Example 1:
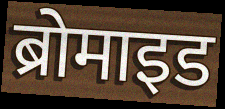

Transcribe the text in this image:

ब्रोमाइड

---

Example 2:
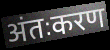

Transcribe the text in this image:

अंतःकरण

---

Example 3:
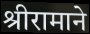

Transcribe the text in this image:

श्रीरामाने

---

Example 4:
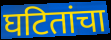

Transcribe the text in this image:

घटितांचा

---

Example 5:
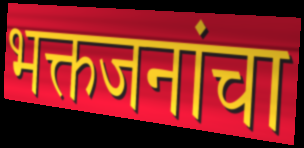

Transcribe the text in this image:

भक्तजनांचा